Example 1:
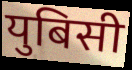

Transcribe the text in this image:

युबिसी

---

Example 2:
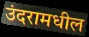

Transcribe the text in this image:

उंदरामधील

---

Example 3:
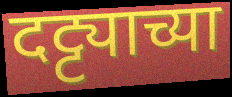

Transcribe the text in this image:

दट्ट्याच्या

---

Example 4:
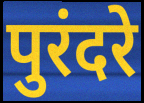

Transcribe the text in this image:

पुरंदरे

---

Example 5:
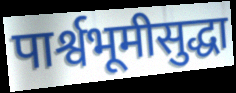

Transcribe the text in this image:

पार्श्वभूमीसुद्धा